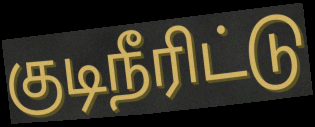
குடிநீரிட்டு